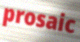
prosaic